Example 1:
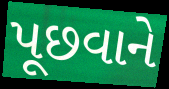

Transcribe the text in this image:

પૂછવાને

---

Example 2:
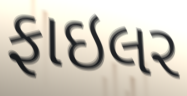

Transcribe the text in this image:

ફાઇલર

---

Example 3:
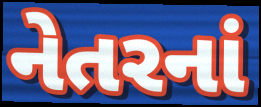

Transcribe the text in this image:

નેતરનાં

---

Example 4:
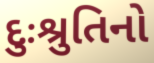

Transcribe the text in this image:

દુઃશ્રુતિનો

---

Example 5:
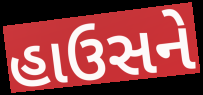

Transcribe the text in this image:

હાઉસને